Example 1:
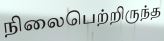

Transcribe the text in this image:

நிலைபெற்றிருந்த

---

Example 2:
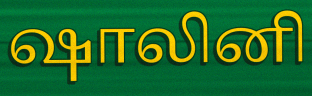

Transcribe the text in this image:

ஷாலினி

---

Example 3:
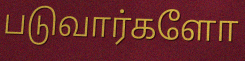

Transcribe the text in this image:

படுவார்களோ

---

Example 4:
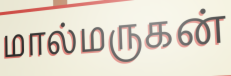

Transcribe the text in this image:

மால்மருகன்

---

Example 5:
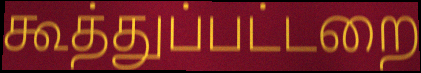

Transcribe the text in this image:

கூத்துப்பட்டறை